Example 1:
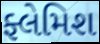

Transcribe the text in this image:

ફ્લેમિશ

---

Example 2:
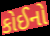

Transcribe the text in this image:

કોઈનો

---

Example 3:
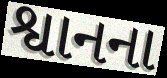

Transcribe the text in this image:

શ્વાનના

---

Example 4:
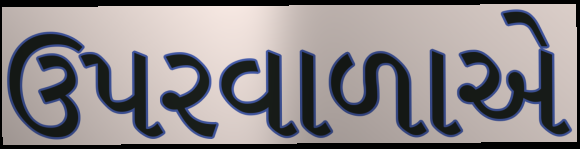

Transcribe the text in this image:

ઉપરવાળાએ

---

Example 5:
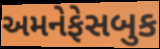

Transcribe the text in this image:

અમનેફેસબુક